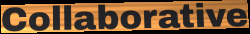
Collaborative